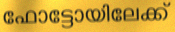
ഫോട്ടോയിലേക്ക്